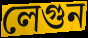
লেগুন